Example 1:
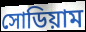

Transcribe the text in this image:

সোডিয়াম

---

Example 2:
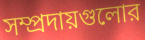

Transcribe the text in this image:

সম্প্রদায়গুলোর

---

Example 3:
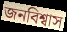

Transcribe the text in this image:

জনবিশ্বাস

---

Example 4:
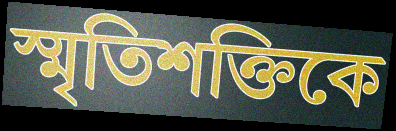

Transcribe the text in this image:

স্মৃতিশক্তিকে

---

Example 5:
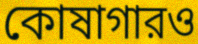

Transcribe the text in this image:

কোষাগারও